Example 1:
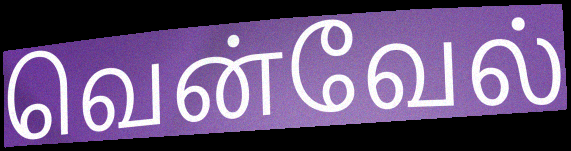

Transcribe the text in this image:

வென்வேல்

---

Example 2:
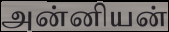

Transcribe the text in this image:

அன்னியன்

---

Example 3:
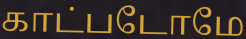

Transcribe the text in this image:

காட்படோமே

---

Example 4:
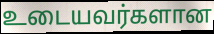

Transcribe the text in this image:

உடையவர்களான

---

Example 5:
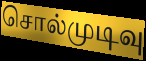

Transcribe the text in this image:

சொல்முடிவு